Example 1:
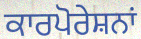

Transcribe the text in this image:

ਕਾਰਪੋਰੇਸ਼ਨਾਂ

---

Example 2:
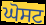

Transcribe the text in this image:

ਘੋਸਟ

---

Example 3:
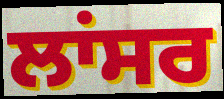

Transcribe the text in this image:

ਲਾਂਸਰ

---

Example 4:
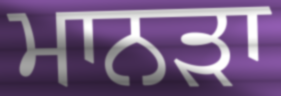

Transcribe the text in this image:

ਮਾਨੜਾ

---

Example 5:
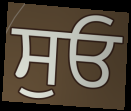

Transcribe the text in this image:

ਸੁਓ